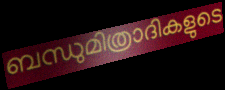
ബന്ധുമിത്രാദികളുടെ